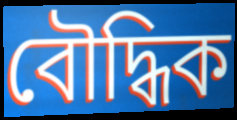
বৌদ্ধিক